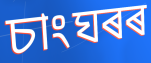
চাংঘৰৰ